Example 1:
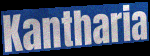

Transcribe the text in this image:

Kantharia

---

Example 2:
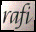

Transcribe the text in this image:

rafi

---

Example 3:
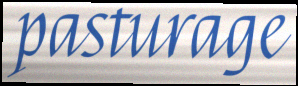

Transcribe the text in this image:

pasturage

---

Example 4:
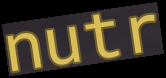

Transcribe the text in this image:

nutr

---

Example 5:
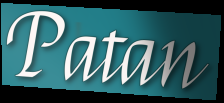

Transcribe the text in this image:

Patan